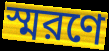
স্মরণে